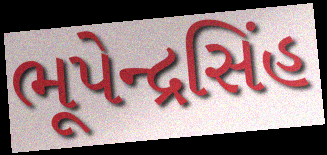
ભૂપેન્દ્રસિંહ